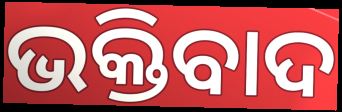
ଭକ୍ତିବାଦ